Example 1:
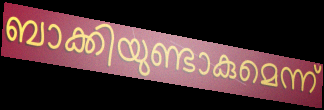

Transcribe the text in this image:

ബാക്കിയുണ്ടാകുമെന്ന്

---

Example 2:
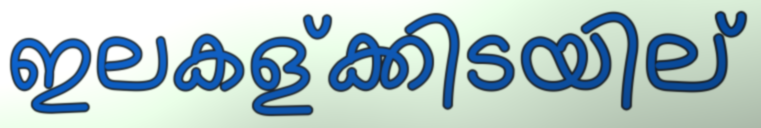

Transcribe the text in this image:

ഇലകള്ക്കിടയില്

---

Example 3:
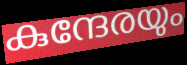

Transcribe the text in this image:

കുന്ദേരയും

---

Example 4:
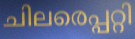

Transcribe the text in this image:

ചിലരെപ്പറ്റി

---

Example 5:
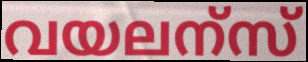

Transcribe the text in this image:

വയലന്സ്